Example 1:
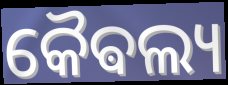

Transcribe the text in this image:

କୈଵଲ୍ୟ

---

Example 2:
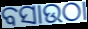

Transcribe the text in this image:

ବସାଉଠା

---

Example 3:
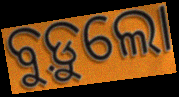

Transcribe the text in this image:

ବୁଡ଼ୁଲୋ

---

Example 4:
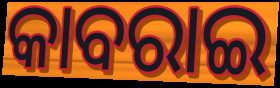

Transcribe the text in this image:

କାବରାଇ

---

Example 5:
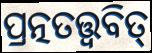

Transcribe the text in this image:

ପ୍ରତ୍ନତତ୍ତ୍ଵବିତ୍